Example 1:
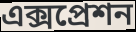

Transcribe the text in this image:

এক্সপ্রেশন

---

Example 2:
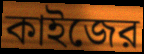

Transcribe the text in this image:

কাইজের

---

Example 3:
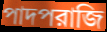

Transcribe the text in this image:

পাদপরাজি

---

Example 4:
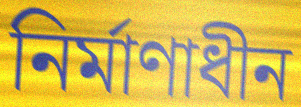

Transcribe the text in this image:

নির্মাণাধীন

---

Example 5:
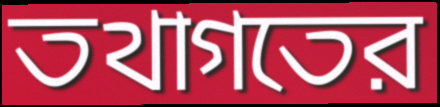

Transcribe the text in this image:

তথাগতের